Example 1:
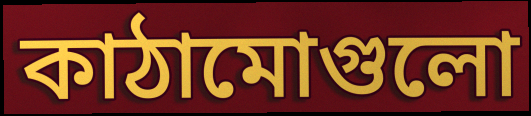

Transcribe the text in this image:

কাঠামোগুলো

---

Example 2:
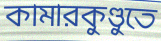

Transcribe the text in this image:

কামারকুণ্ডুতে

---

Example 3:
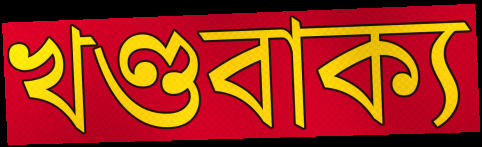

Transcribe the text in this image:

খণ্ডবাক্য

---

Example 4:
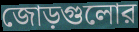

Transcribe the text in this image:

জোড়গুলোর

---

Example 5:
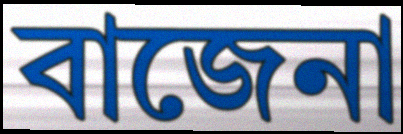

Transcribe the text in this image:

বাজেনা